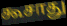
கூசாது